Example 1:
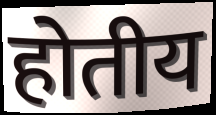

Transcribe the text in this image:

होतीय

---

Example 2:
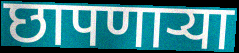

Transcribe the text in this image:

छापणाऱ्या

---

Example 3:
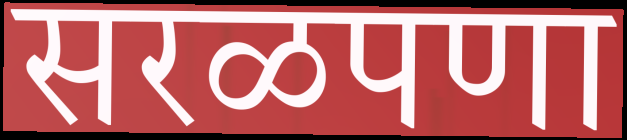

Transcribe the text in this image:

सरळपणा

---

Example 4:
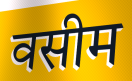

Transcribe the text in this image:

वसीम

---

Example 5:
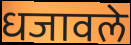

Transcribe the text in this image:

धजावले